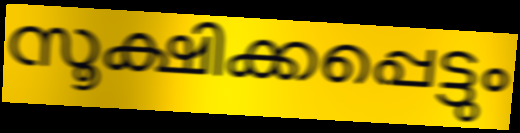
സൂക്ഷിക്കപ്പെട്ടും